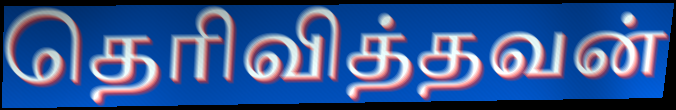
தெரிவித்தவன்